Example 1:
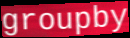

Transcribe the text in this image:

groupby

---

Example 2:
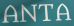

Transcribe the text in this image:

ANTA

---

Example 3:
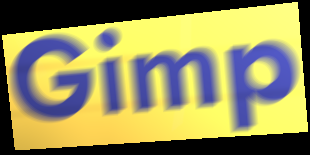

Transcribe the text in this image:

Gimp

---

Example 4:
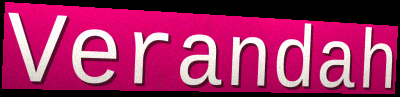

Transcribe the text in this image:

Verandah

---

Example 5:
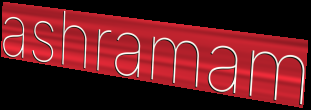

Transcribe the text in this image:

ashramam